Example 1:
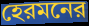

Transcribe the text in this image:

হেরমনের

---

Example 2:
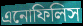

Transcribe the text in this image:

এনোফিলিস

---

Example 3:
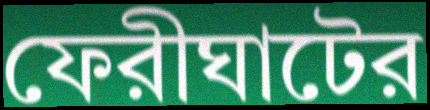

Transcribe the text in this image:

ফেরীঘাটের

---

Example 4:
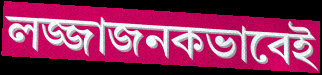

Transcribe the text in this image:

লজ্জাজনকভাবেই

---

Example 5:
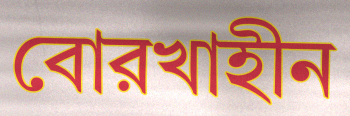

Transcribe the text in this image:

বোরখাহীন